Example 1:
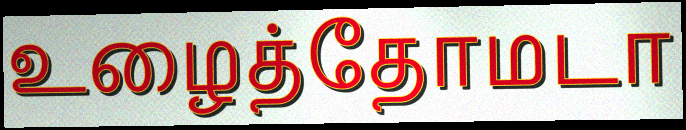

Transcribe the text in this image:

உழைத்தோமடா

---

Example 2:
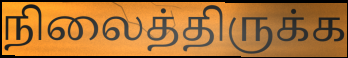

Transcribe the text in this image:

நிலைத்திருக்க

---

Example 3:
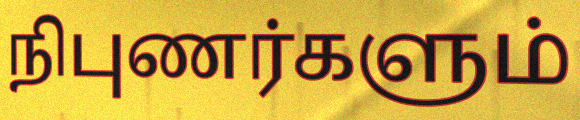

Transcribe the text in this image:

நிபுணர்களும்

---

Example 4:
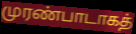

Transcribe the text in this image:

முரண்பாடாகத்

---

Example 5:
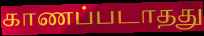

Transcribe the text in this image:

காணப்படாதது